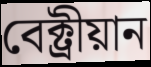
বেক্ট্ৰীয়ান